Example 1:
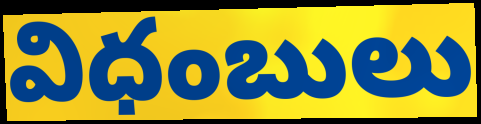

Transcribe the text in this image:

విధంబులు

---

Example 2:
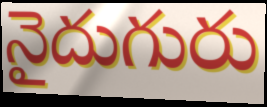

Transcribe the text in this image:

నైదుగురు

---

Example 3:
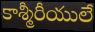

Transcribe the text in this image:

కాశ్మీరీయులే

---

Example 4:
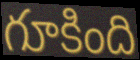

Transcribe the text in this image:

గూకింది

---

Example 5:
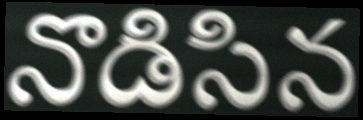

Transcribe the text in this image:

నొడిసిన